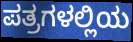
ಪತ್ರಗಳಲ್ಲಿಯ